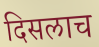
दिसलाच